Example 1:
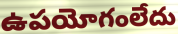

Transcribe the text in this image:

ఉపయోగంలేదు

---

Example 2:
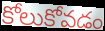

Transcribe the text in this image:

కోలుకోవడం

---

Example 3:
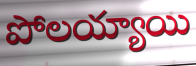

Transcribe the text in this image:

పోలయ్యాయి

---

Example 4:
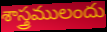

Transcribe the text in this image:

శాస్త్రములందు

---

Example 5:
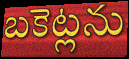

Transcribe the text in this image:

బకెట్లను